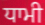
ਧਾਮੀ